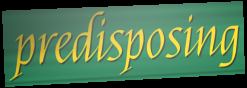
predisposing